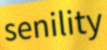
senility